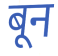
बून